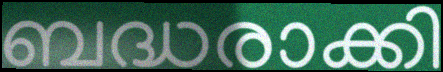
ബദ്ധരാക്കി